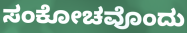
ಸಂಕೋಚವೊಂದು